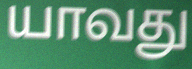
யாவது